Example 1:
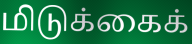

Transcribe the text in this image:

மிடுக்கைக்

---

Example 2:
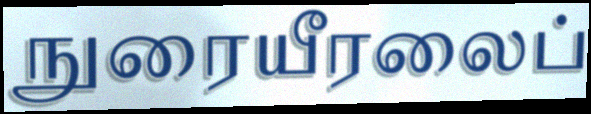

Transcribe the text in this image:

நுரையீரலைப்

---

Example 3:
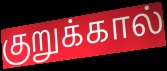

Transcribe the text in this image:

குறுக்கால்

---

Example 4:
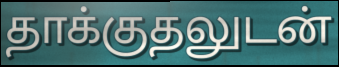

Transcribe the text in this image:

தாக்குதலுடன்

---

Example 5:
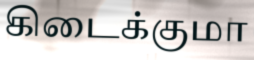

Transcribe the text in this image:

கிடைக்குமா